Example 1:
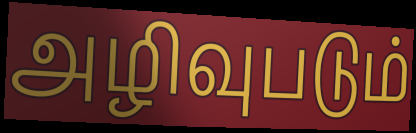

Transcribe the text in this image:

அழிவுபடும்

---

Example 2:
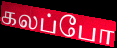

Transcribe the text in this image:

கலப்போ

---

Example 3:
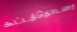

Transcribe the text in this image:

கூட்டத்தொடரை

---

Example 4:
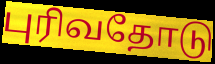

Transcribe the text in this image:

புரிவதோடு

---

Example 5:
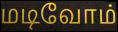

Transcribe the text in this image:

மடிவோம்